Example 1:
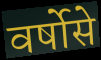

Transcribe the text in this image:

वर्षोसे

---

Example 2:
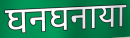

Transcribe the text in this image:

घनघनाया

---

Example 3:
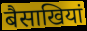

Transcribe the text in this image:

बैसाखियां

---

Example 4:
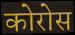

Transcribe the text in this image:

कोरोस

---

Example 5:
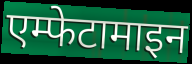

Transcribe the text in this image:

एम्फेटामाइन